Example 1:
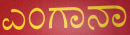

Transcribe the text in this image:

ಎಂಗಾನಾ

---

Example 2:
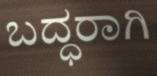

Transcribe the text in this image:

ಬದ್ಧರಾಗಿ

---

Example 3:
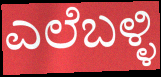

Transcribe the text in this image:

ಎಲೆಬಳ್ಳಿ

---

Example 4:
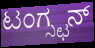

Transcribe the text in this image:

ಟಂಗ್ಸ್ಟನ್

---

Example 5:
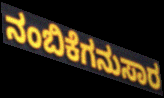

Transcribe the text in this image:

ನಂಬಿಕೆಗನುಸಾರ